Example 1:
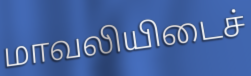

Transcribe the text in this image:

மாவலியிடைச்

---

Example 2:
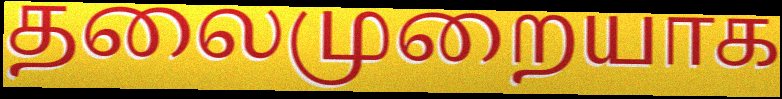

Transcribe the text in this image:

தலைமுறையாக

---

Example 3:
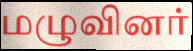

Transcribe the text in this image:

மழுவினர்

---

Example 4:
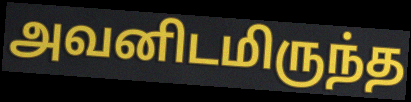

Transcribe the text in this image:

அவனிடமிருந்த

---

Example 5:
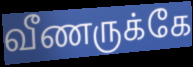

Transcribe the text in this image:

வீணருக்கே